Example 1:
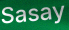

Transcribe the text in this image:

Sasay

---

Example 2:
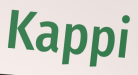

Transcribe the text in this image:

Kappi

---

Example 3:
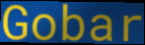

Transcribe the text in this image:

Gobar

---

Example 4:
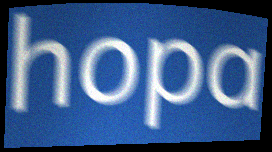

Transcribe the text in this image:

hopa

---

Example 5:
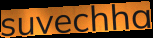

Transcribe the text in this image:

suvechha